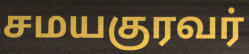
சமயகுரவர்